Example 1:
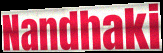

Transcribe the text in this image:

Nandhaki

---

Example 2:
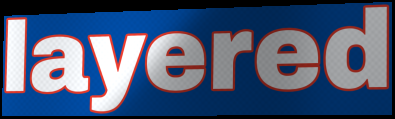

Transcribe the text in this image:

layered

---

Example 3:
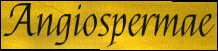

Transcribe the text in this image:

Angiospermae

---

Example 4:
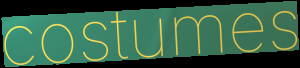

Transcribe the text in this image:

costumes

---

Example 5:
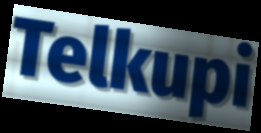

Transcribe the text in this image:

Telkupi